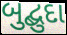
બુદ્બુદા